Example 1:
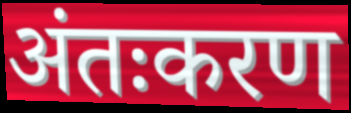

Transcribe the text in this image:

अंतःकरण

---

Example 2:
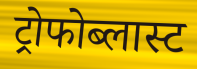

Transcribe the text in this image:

ट्रोफोब्लास्ट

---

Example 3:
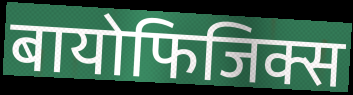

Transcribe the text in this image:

बायोफिजिक्स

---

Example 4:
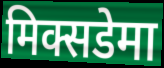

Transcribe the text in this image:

मिक्सडेमा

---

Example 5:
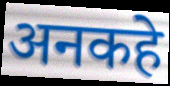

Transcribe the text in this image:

अनकहे